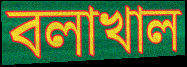
বলাখাল